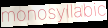
monosyllabic